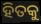
ହିତକୁ